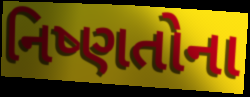
નિષ્ણતોના